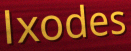
Ixodes